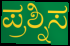
ಪ್ರಶ್ನಿಸ